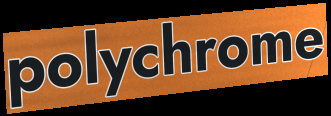
polychrome